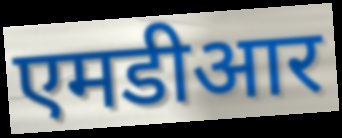
एमडीआर